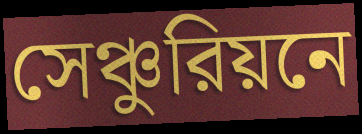
সেঞ্চুরিয়নে